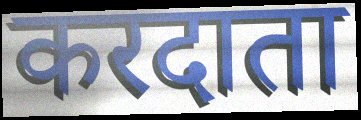
करदाता